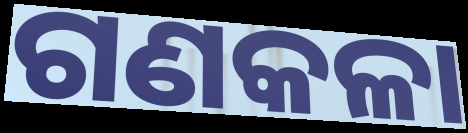
ଗଣକଳା